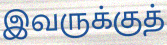
இவருக்குத்